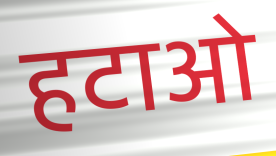
हटाओ